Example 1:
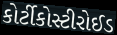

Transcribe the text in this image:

કોર્ટીકોસ્ટીરોઈડ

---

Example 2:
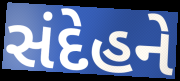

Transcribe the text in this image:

સંદેહને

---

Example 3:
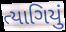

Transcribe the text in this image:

ત્યાગિયું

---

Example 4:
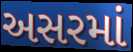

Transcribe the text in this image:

અસરમાં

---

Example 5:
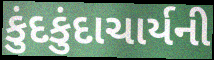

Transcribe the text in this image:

કુંદકુંદાચાર્યની